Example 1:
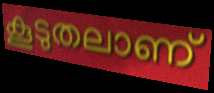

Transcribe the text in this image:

കൂടുതലാണ്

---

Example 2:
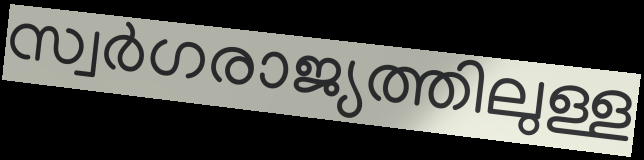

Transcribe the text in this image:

സ്വർഗരാജ്യത്തിലുള്ള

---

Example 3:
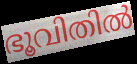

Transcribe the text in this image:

ഭൂവിതിൽ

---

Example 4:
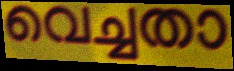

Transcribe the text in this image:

വെച്ചതാ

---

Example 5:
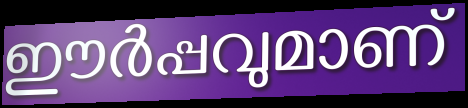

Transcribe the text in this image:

ഈർപ്പവുമാണ്